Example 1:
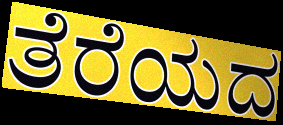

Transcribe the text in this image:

ತೆರೆಯದ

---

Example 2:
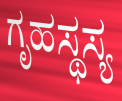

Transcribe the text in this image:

ಗೃಹಸ್ಥಸ್ಯ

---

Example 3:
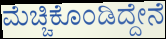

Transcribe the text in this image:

ಮೆಚ್ಚಿಕೊಂಡಿದ್ದೇನೆ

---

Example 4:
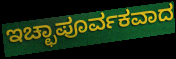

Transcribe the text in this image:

ಇಚ್ಛಾಪೂರ್ವಕವಾದ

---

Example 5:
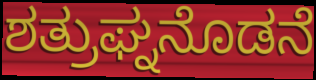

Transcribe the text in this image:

ಶತ್ರುಘ್ನನೊಡನೆ